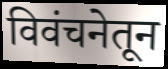
विवंचनेतून